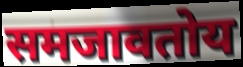
समजावतोय